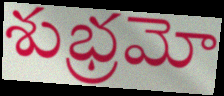
శుభ్రమో